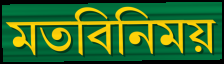
মতবিনিময়